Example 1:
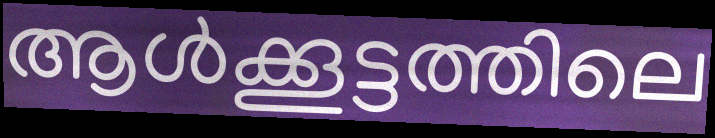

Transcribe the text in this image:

ആൾക്കൂട്ടത്തിലെ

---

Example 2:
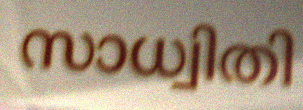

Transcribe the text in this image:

സാധ്വിതി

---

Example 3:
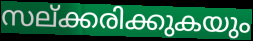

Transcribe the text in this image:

സല്ക്കരിക്കുകയും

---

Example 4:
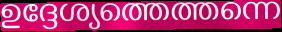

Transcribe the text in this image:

ഉദ്ദേശ്യത്തെത്തന്നെ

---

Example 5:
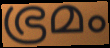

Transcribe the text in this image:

ഭ്രമം